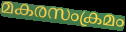
മകരസംക്രമം